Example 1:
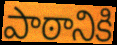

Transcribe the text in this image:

పాఠానికి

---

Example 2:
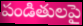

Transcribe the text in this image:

పండితులపై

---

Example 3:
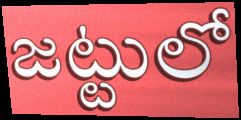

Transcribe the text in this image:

జట్టులో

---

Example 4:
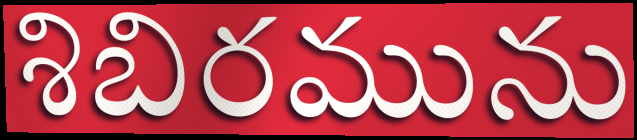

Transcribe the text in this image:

శిబిరమును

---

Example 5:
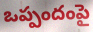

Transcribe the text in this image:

ఒప్పందంపై